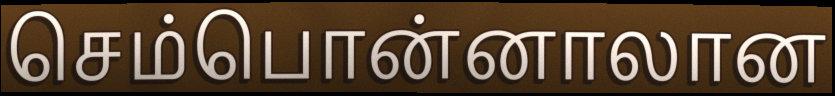
செம்பொன்னாலான